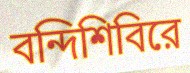
বন্দিশিবিরে